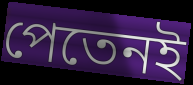
পেতেনই